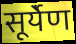
सूर्ये॑ण